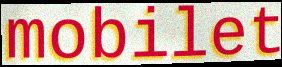
mobilet